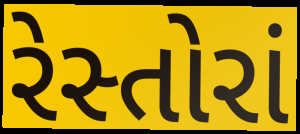
રેસ્તોરાં